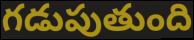
గడుపుతుంది